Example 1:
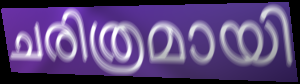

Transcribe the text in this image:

ചരിത്രമായി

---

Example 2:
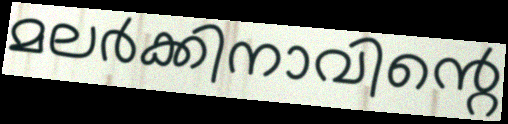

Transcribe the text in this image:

മലർക്കിനാവിന്റെ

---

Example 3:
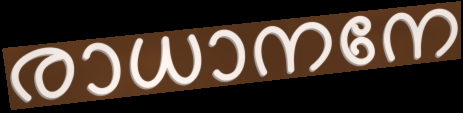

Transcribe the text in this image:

രാധാനനേ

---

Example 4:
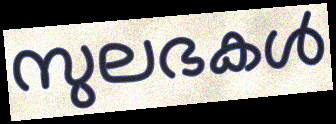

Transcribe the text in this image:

സുലഭകൾ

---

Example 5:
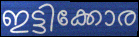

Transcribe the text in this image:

ഇട്ടിക്കോര